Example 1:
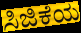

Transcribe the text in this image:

ಸಿಜಿಕೆಯ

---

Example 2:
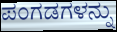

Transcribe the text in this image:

ಪಂಗಡಗಳನ್ನು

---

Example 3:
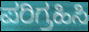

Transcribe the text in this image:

ಪರಿಗ್ರಹಿಸಿ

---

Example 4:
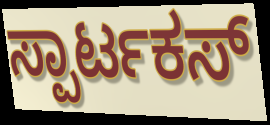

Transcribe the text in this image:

ಸ್ಪಾರ್ಟಕಸ್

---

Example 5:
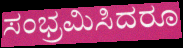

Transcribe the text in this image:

ಸಂಭ್ರಮಿಸಿದರೂ